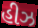
હીઝ